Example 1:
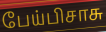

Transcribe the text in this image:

பேய்பிசாசு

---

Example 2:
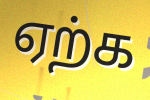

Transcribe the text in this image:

ஏற்க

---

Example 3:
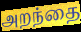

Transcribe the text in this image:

அறந்தை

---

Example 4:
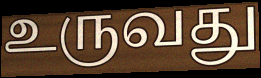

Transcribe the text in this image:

உருவது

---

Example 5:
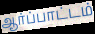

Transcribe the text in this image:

ஆர்ப்பாட்டம்